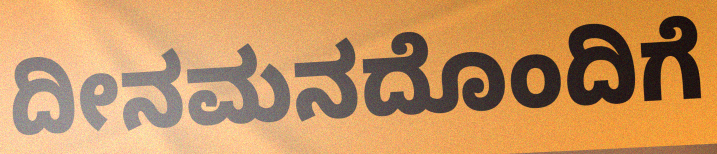
ದೀನಮನದೊಂದಿಗೆ